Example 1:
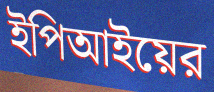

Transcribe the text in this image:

ইপিআইয়ের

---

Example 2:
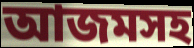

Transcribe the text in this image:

আজমসহ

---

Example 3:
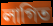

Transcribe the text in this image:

লাগিত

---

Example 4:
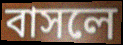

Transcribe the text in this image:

বাসলে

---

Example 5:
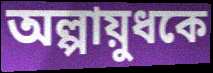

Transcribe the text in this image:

অল্পায়ুধকে